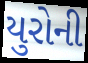
યુરોની